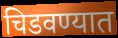
चिडवण्यात